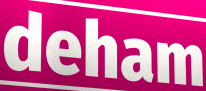
deham